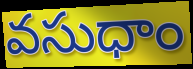
వసుధాం